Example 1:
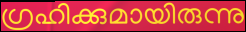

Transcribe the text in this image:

ഗ്രഹിക്കുമായിരുന്നു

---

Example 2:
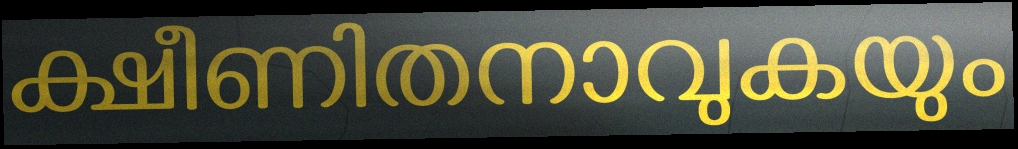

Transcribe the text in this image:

ക്ഷീണിതനാവുകയും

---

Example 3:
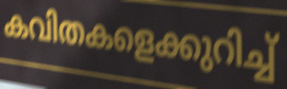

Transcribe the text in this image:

കവിതകളെക്കുറിച്ച്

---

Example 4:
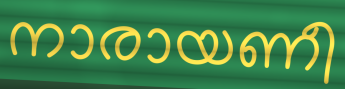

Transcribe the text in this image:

നാരായണീ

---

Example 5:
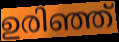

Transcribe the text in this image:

ഉരിഞ്ഞ്